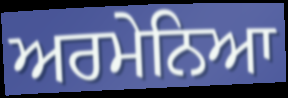
ਅਰਮੇਨਿਆ